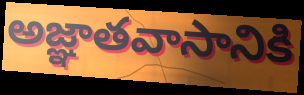
అజ్ఞాతవాసానికి